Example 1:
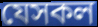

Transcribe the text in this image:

যেসকল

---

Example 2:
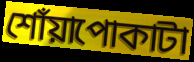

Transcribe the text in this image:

শোঁয়াপোকাটা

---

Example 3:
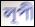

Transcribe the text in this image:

লূপী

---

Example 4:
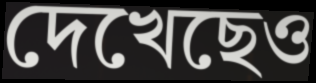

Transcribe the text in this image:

দেখেছেও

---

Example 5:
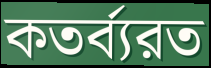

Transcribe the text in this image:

কতর্ব্যরত